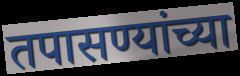
तपासण्यांच्या